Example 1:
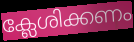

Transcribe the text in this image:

ക്ലേശിക്കണം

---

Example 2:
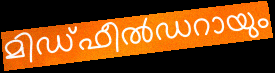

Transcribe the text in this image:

മിഡ്ഫീൽഡറായും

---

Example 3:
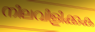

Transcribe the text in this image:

നിലവിളിക്കുക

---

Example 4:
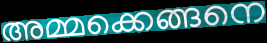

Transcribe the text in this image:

അമ്മക്കെങ്ങനെ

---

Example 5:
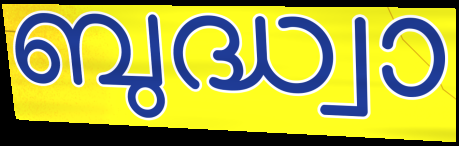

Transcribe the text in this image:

ബുദ്ധ്വാ